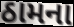
ઠામના